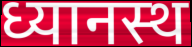
ध्यानस्थ